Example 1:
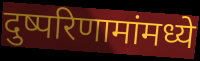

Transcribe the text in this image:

दुष्परिणामांमध्ये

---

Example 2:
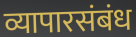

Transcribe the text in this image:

व्यापारसंबंध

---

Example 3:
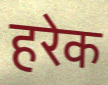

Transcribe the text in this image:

हरेक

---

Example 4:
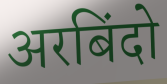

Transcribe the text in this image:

अरबिंदो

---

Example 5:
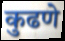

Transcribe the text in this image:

कुढणे